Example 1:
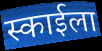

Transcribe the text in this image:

स्काईला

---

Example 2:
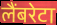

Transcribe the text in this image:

लैंबरेटा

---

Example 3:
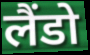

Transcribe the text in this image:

लैंडो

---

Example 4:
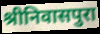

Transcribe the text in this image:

श्रीनिवासपुरा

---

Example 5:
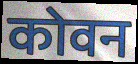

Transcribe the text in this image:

कोवन